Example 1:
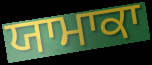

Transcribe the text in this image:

ਯਾਮਾਕਾ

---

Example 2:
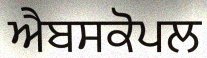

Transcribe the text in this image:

ਐਬਸਕੋਪਲ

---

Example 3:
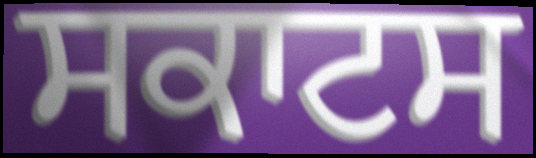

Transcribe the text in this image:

ਸਕਾਟਸ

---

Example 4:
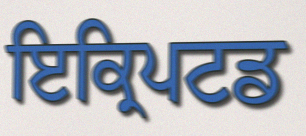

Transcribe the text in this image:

ਇਕ੍ਰਿਪਟਡ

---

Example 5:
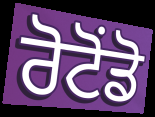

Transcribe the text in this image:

ਰੋਟੋਂਡੋ